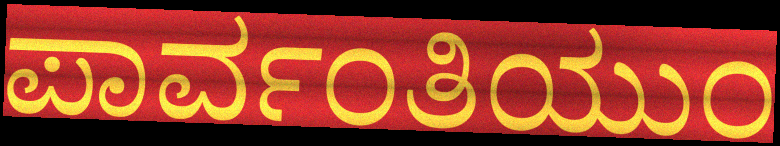
ಪಾರ್ವಂತಿಯುಂ